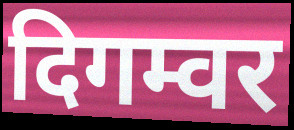
दिगम्वर